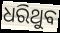
ଧରିଥୁବ